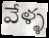
వేళ్ళ